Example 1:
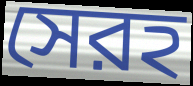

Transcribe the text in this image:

সেরহ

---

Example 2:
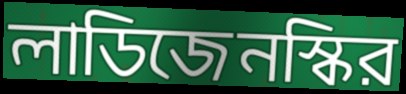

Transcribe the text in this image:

লাডিজেনস্কির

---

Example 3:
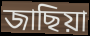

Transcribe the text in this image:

জাছিয়া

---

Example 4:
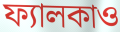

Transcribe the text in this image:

ফ্যালকাও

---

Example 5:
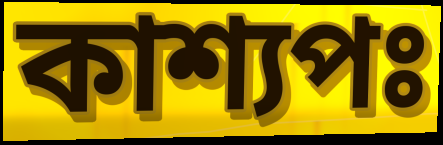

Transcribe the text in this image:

কাশ্যপঃ